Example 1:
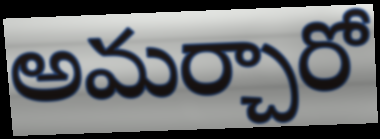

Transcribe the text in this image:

అమర్చారో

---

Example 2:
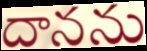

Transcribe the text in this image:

దానను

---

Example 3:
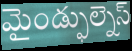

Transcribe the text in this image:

మైండ్ఫుల్నెస్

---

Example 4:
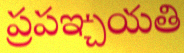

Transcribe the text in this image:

ప్రపఞ్చయతి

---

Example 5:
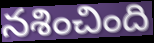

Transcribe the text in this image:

నశించింది